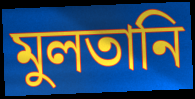
মুলতানি